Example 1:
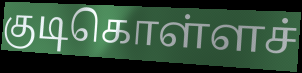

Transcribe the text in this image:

குடிகொள்ளச்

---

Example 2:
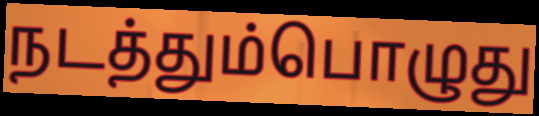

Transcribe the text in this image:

நடத்தும்பொழுது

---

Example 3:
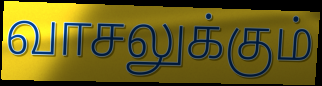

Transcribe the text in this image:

வாசலுக்கும்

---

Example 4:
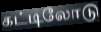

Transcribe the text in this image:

கட்டிலோடு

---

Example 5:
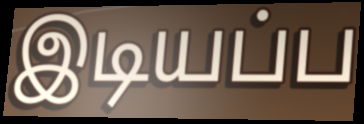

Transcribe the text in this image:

இடியப்ப